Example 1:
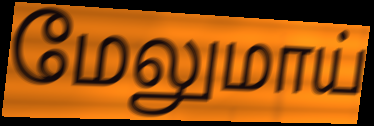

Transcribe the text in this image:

மேலுமாய்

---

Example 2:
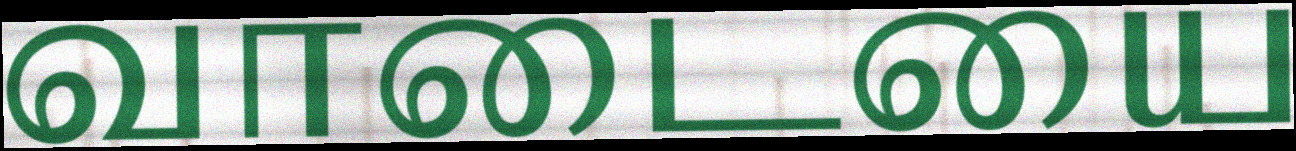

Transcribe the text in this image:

வாடையை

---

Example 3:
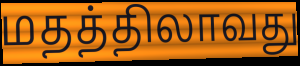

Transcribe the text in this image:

மதத்திலாவது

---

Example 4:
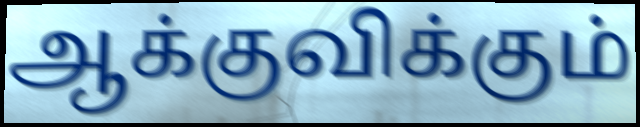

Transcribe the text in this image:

ஆக்குவிக்கும்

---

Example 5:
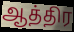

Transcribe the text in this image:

ஆத்திர